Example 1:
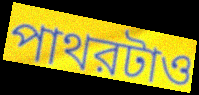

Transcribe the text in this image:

পাথরটাও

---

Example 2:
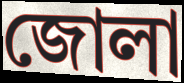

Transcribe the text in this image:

জোলা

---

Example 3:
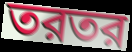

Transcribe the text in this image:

তরতর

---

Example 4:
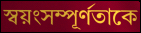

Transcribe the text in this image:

স্বয়ংসম্পূর্ণতাকে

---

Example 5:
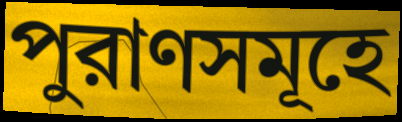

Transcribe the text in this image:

পুরাণসমূহে